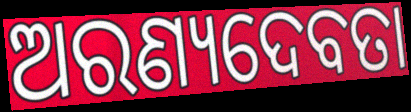
ଅରଣ୍ୟଦେବତା